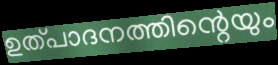
ഉത്പാദനത്തിന്റെയും